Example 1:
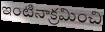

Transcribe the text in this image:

ఇంటినాక్రమించి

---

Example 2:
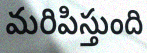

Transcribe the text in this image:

మరిపిస్తుంది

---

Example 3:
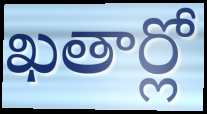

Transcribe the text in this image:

ఖతార్లో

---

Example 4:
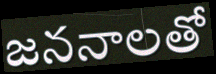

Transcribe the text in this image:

జననాలతో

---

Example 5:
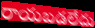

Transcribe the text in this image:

రాయబడలేదు